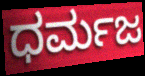
ಧರ್ಮಜ